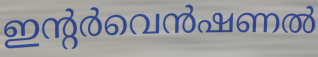
ഇന്റർവെൻഷണൽ